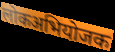
लोकअभियोजक